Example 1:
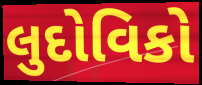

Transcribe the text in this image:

લુદોવિકો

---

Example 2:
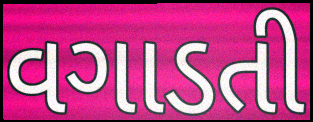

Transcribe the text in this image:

વગાડતી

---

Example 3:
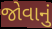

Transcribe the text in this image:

જોવાનું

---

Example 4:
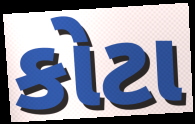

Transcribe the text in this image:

કોટા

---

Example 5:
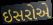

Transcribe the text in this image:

ઇસરોએ